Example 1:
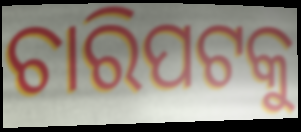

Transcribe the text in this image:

ଚାରିପଟକୁ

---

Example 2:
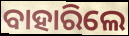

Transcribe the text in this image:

ବାହାରିଲେ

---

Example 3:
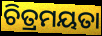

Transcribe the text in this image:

ଚିତ୍ରମୟତା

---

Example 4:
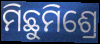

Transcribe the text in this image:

ମିଛୁମିଶ୍ରେ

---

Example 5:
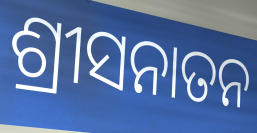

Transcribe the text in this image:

ଶ୍ରୀସନାତନ